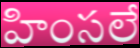
హింసలే